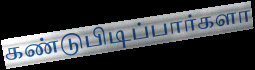
கண்டுபிடிப்பார்களா